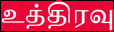
உத்திரவு